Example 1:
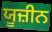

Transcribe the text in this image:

ਯੂਜ਼ੀਨ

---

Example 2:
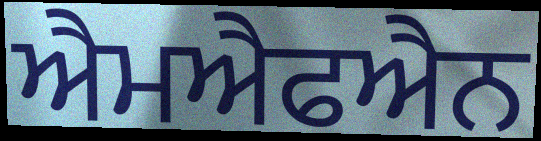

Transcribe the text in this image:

ਐਮਐਫਐਨ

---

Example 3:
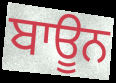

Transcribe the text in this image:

ਬਾਊਨ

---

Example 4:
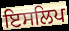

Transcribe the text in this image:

ਇਸਲਿਪ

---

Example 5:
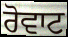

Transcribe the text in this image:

ਰੋਵਾਟ